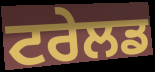
ਟਰੇਲਡ